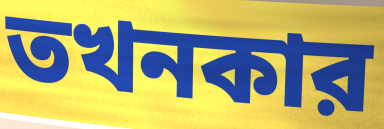
তখনকার